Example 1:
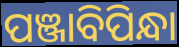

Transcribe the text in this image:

ପଞ୍ଜାବିପିନ୍ଧା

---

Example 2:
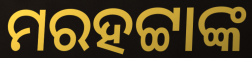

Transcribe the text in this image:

ମରହଟ୍ଟାଙ୍କ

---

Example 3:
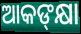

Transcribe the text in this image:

ଆକଙ୍‌କ୍ଷା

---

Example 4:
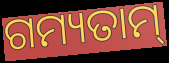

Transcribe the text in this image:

ଗମ୍ୟତାମ୍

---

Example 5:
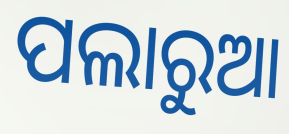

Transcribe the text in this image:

ପଲାରୁଆ